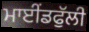
ਮਾਈਂਡਫੁੱਲੀ